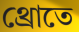
থ্রোতে